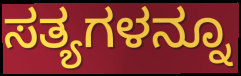
ಸತ್ಯಗಳನ್ನೂ